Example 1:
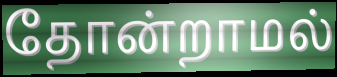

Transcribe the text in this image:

தோன்றாமல்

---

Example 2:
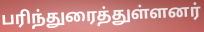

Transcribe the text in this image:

பரிந்துரைத்துள்ளனர்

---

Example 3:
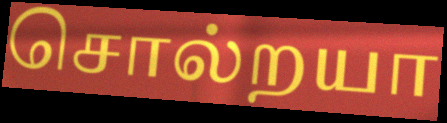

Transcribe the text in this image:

சொல்றயா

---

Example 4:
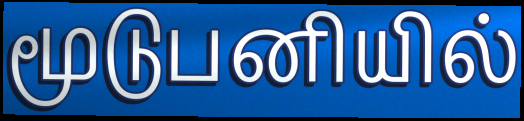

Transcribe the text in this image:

மூடுபனியில்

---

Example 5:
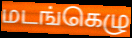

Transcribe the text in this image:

மடங்கெழு